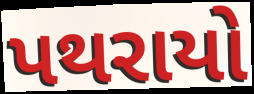
પથરાયો